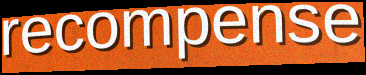
recompense